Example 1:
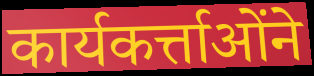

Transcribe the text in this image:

कार्यकर्त्ताओंने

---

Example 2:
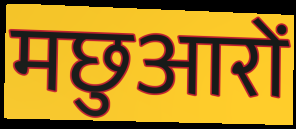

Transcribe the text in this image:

मछुआरों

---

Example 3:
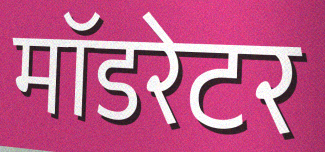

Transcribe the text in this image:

मॉडरेटर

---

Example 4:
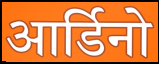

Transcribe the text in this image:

आर्डिनो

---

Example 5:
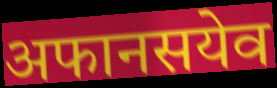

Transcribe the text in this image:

अफानसयेव